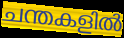
ചന്തകളിൽ